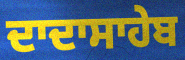
ਦਾਦਾਸਾਹੇਬ